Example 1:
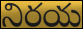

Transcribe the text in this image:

నిరయ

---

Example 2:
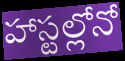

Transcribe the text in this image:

హాస్టల్లోనో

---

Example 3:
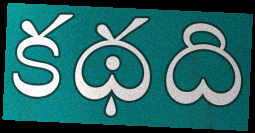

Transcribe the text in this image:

కథది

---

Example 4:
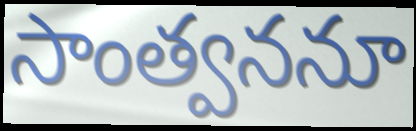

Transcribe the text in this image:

సాంత్వననూ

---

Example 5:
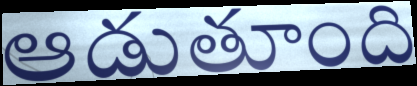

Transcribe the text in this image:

ఆడుతూంది